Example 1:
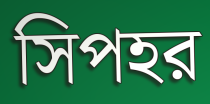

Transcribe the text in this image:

সিপহর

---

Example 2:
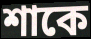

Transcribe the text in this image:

শাকে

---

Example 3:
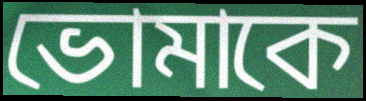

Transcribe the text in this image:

ভোমাকে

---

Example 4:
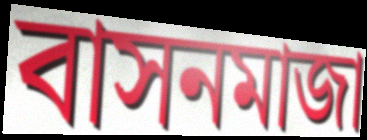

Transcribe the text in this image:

বাসনমাজা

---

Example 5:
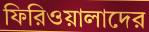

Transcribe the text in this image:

ফিরিওয়ালাদের